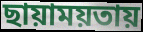
ছায়াময়তায়